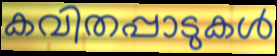
കവിതപ്പാടുകൾ